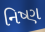
નિષ્ણ